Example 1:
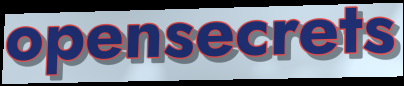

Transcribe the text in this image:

opensecrets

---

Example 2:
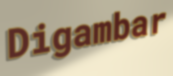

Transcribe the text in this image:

Digambar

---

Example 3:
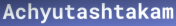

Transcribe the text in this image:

Achyutashtakam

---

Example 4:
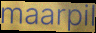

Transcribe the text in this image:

maarpil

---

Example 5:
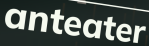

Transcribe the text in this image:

anteater